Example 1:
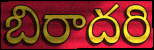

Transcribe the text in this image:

బిరాదరి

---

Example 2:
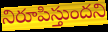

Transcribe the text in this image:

నిరూపిస్తుందని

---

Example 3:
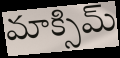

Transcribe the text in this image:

మాక్సిమ్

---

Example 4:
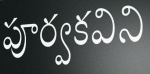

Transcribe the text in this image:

పూర్వకవిని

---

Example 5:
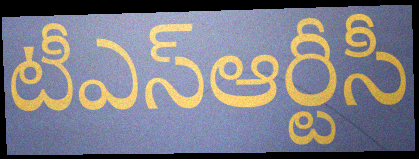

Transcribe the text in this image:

టీఎస్ఆర్టీసీ